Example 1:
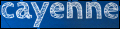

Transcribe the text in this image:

cayenne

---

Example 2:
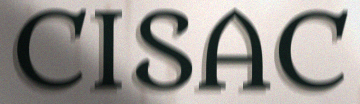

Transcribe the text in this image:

CISAC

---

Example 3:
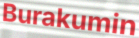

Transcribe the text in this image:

Burakumin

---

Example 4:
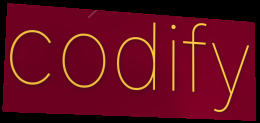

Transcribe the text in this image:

codify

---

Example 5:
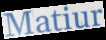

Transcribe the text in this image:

Matiur